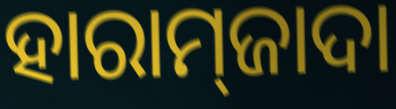
ହାରାମ୍‌ଜାଦା